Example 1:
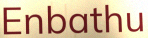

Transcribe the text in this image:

Enbathu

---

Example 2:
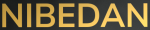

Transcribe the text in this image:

NIBEDAN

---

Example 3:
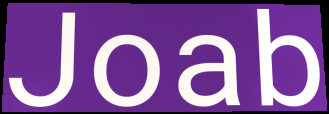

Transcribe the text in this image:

Joab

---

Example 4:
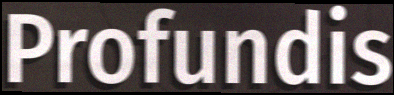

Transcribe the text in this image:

Profundis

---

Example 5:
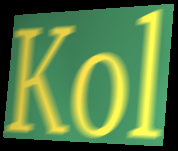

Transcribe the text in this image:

Kol